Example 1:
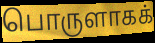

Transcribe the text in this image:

பொருளாகக்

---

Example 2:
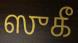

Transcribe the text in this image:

ஸுகீ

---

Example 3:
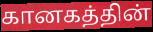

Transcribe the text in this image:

கானகத்தின்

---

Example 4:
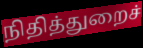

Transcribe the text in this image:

நிதித்துறைச்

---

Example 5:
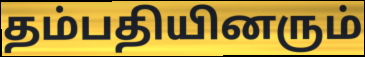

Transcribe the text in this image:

தம்பதியினரும்